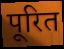
पूरित